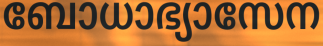
ബോധാഭ്യാസേന